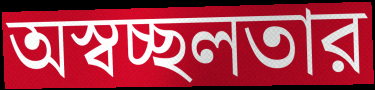
অস্বচ্ছলতার